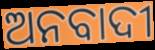
ଅନବାଦୀ